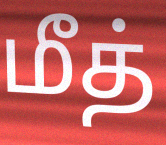
மீத்